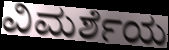
ವಿಮರ್ಶೆಯ